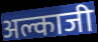
अल्काजी